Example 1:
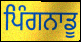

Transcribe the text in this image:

ਪਿੰਗਨਾਡੂ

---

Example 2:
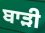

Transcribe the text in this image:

ਬਾੜੀ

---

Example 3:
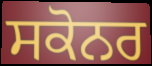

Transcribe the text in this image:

ਸਕੋਨਰ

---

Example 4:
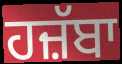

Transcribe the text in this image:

ਹਜ਼ੱਬਾ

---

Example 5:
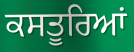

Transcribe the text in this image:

ਕਸਤੂਰਿਆਂ